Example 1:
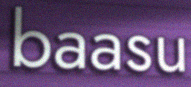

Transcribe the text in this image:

baasu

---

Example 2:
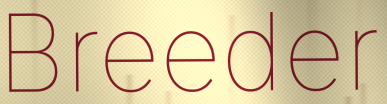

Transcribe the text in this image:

Breeder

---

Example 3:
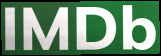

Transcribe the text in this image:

IMDb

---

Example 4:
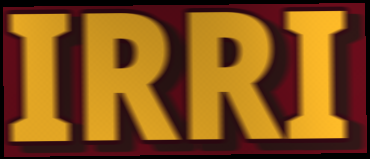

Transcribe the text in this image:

IRRI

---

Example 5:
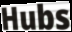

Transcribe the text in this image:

Hubs